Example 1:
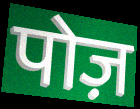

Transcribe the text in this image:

पोज़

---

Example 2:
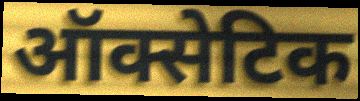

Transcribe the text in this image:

ऑक्सेटिक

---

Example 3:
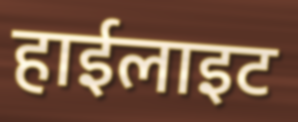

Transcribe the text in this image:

हाईलाइट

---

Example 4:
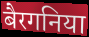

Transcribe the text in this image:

बैरगनिया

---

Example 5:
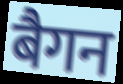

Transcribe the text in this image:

बैगन